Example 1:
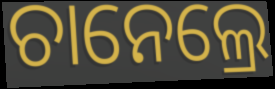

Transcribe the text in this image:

ଚାନେଲ୍ରେ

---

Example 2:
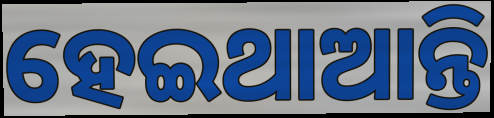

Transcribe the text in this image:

ହେଇଥାଆନ୍ତି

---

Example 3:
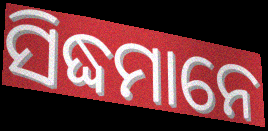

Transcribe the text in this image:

ସିଦ୍ଧମାନେ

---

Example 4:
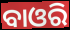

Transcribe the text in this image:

ବାଓରି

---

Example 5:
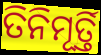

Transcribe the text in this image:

ତିନିମୂର୍ତ୍ତି